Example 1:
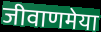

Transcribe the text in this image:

जीवाणमेया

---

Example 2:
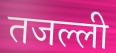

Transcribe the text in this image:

तजल्ली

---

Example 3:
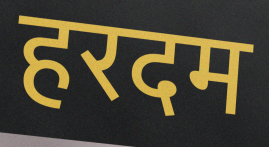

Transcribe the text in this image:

हरदम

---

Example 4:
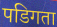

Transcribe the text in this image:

पडिगता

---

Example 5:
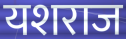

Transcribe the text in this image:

यशराज